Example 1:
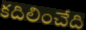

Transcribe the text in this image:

కదిలించేది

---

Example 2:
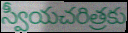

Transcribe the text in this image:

స్వీయచరిత్రకు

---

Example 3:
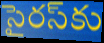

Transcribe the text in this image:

సైరస్‌కు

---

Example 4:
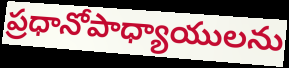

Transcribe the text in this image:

ప్రధానోపాధ్యాయులను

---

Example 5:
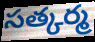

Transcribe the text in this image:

సత్కర్మ